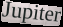
Jupiter